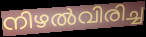
നിഴൽവിരിച്ച